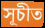
সূচীত